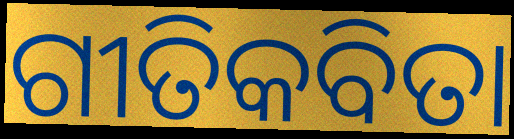
ଗୀତିକବିତା